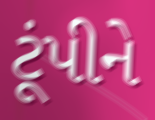
ટૂંપીને